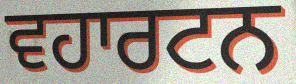
ਵਹਾਰਟਨ